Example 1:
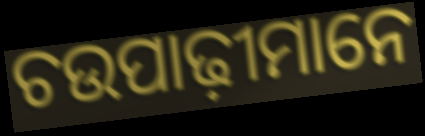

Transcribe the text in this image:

ଚଉପାଢ଼ୀମାନେ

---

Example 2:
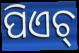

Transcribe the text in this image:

ପିଏଚ୍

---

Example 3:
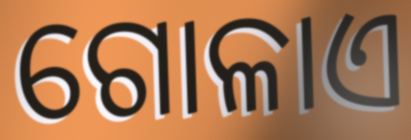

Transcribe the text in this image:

ଗୋଳାଏ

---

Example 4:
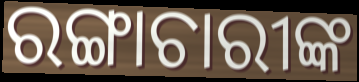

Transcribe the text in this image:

ରଙ୍ଗାଚାରୀଙ୍କ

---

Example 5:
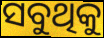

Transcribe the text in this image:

ସବୁଥିକୁ